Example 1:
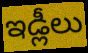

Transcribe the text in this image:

ఇడ్లీలు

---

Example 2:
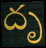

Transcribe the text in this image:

దృ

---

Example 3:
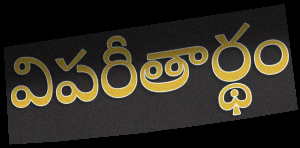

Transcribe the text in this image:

విపరీతార్థం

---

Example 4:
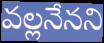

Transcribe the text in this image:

వల్లనేనని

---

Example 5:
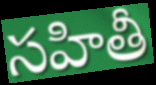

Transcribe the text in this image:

సహితీ